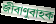
জীবাণুবাহক